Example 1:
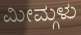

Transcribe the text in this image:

ಮೀಮ್ಗಳು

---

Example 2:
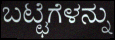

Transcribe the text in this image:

ಬಟ್ಟೆಗೆಳನ್ನು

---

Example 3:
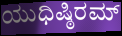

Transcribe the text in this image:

ಯುಧಿಷ್ಠಿರಮ್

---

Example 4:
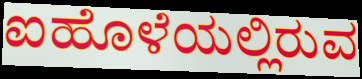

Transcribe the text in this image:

ಐಹೊಳೆಯಲ್ಲಿರುವ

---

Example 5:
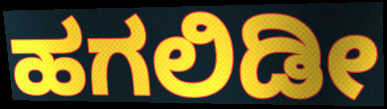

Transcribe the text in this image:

ಹಗಲಿಡೀ